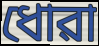
ধোৱা